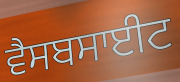
ਵੈਸਬਸਾਈਟ